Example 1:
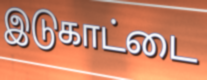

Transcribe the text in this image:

இடுகாட்டை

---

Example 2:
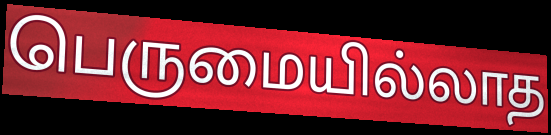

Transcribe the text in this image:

பெருமையில்லாத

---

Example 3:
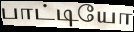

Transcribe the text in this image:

பாட்டியோ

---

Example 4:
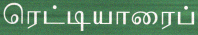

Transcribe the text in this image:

ரெட்டியாரைப்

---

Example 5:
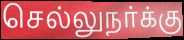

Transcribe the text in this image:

செல்லுநர்க்கு